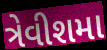
ત્રેવીશમા